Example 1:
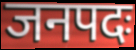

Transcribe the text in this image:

जनपदः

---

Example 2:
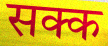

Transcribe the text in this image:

सक्क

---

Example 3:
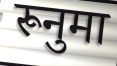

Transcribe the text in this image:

रूनुमा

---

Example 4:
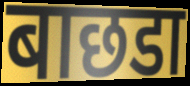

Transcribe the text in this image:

बाछडा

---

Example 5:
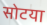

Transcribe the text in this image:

सोटया